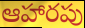
ఆహారపు